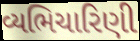
વ્યભિચારિણી